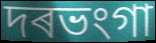
দৰভংগা